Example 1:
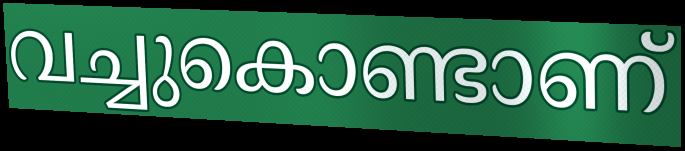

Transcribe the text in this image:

വച്ചുകൊണ്ടാണ്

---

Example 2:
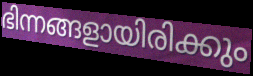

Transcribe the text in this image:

ഭിന്നങ്ങളായിരിക്കും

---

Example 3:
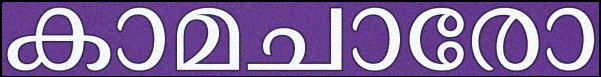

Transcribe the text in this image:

കാമചാരോ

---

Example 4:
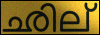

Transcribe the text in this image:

ഛില്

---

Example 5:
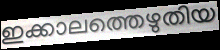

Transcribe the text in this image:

ഇക്കാലത്തെഴുതിയ